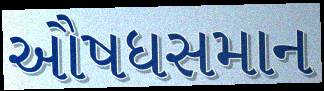
ઔષધસમાન